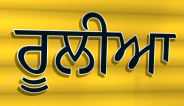
ਰੂਲੀਆ